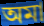
অমা